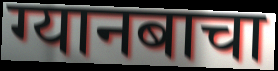
ग्यानबाचा